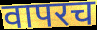
वापरच